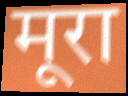
मूरा